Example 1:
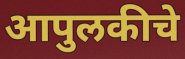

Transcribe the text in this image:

आपुलकीचे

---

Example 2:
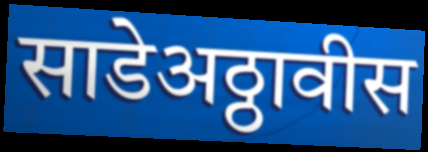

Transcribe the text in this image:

साडेअठ्ठावीस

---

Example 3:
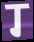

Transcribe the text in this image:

ग्‍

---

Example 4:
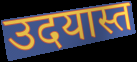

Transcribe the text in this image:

उदयास्त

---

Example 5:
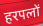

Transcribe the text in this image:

हरपलों